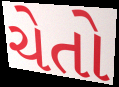
ચેતો